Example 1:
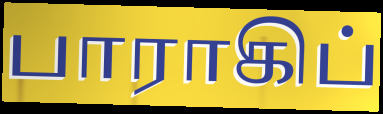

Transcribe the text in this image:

பாராகிப்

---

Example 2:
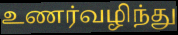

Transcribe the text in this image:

உணர்வழிந்து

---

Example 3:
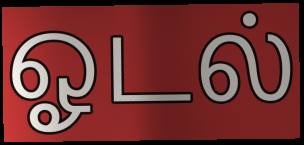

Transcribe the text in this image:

ஓடல்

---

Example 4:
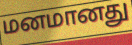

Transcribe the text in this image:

மனமானது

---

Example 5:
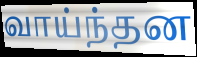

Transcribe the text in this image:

வாய்ந்தன